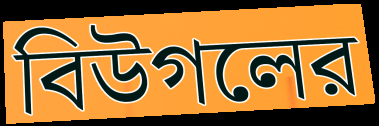
বিউগলের